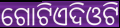
ଗୋଟିଏଦିଓଟି